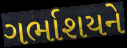
ગર્ભાશયને